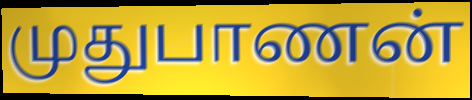
முதுபாணன்